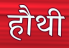
हौथी